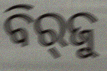
ବିର୍‌ଜୁ